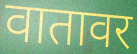
वातावर